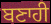
ਬਣਾਹੀ